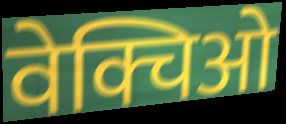
वेक्चिओ